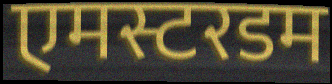
एमस्टरडम